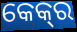
କେକ୍‌ର